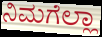
ನಿಮಗೆಲ್ಲಾ